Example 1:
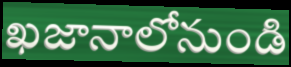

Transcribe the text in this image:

ఖజానాలోనుండి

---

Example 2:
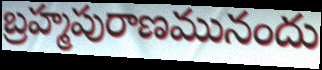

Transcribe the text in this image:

బ్రహ్మపురాణమునందు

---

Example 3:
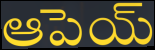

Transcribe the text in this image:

ఆపెయ్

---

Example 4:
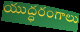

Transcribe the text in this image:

యుద్ధరంగాలు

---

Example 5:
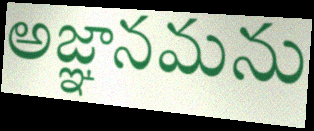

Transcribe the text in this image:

అజ్ఞానమను